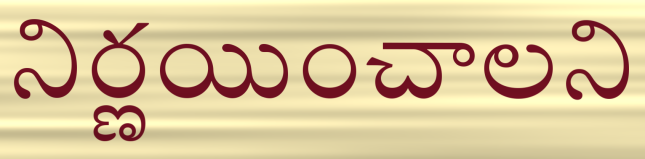
నిర్ణయించాలని